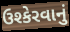
ઉશ્કેરવાનું